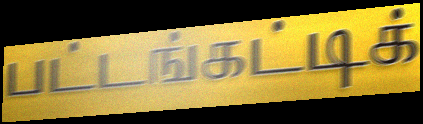
பட்டங்கட்டிக்